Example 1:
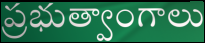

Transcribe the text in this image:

ప్రభుత్వాంగాలు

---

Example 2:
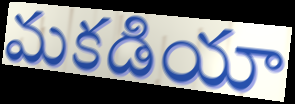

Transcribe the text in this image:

మకడియా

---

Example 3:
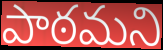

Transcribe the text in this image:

పాఠమని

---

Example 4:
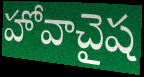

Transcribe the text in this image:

హోవాచైష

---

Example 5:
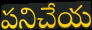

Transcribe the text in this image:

పనిచేయ